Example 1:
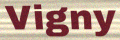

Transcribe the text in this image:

Vigny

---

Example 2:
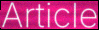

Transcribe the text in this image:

Article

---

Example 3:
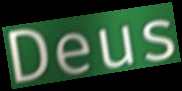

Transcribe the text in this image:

Deus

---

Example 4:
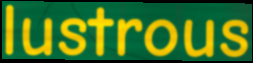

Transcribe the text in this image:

lustrous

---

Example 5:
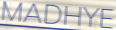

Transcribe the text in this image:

MADHYE